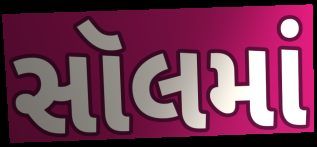
સૉલમાં